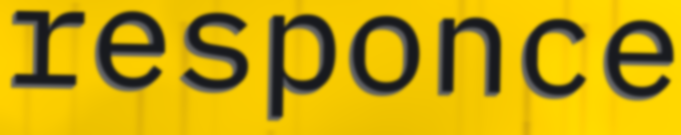
responce